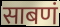
साबणं